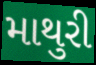
માથુરી